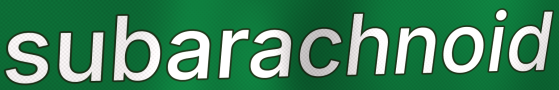
subarachnoid